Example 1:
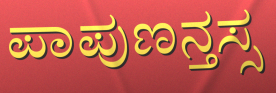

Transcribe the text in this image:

ಪಾಪುಣನ್ತಸ್ಸ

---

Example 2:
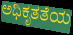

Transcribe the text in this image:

ಅಧಿಕೃತತೆಯ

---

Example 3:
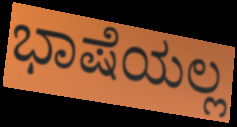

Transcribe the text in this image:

ಭಾಷೆಯಲ್ಲ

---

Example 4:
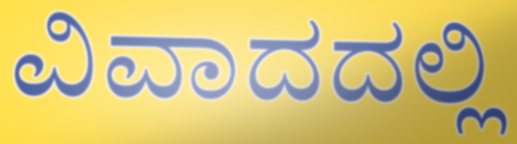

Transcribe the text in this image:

ವಿವಾದದಲ್ಲಿ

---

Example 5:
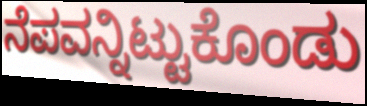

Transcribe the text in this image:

ನೆಪವನ್ನಿಟ್ಟುಕೊಂಡು